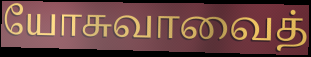
யோசுவாவைத்